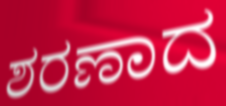
ಶರಣಾದ